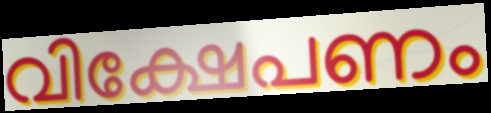
വിക്ഷേപണം